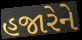
હજારેને